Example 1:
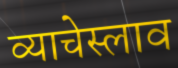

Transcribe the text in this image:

व्याचेस्लाव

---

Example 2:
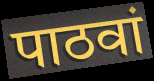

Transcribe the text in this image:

पाठवां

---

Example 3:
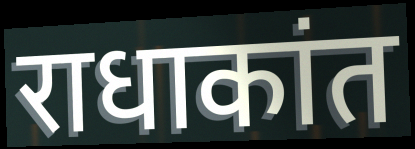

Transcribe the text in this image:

राधाकांत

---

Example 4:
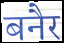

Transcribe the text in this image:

बनैर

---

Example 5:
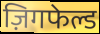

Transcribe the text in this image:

ज़िगफेल्ड